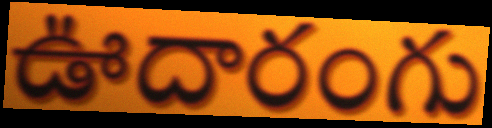
ఊదారంగు